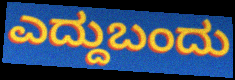
ಎದ್ದುಬಂದು